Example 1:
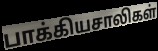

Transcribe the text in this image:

பாக்கியசாலிகள்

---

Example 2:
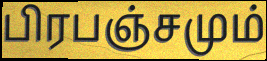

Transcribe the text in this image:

பிரபஞ்சமும்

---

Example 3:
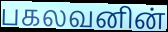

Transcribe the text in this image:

பகலவனின்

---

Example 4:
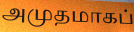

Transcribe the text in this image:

அமுதமாகப்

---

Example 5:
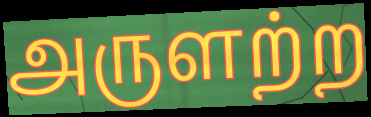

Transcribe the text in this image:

அருளற்ற